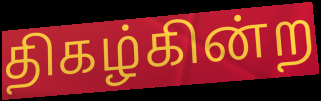
திகழ்கின்ற